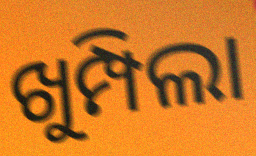
ଖୁମ୍ପିଲା